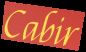
Cabir